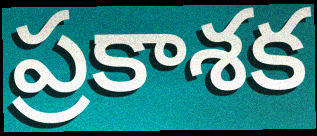
ప్రకాశక